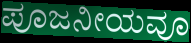
ಪೂಜನೀಯವೂ